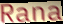
Rana